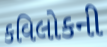
કવિલોકની